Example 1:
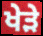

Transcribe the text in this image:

ਖੇੜੇ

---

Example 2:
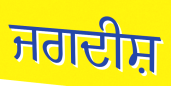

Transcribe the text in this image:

ਜਗਦੀਸ਼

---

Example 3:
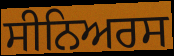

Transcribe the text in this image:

ਸੀਨਿਅਰਸ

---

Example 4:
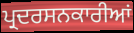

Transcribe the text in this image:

ਪ੍ਰਦਰਸਨਕਾਰੀਆਂ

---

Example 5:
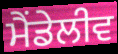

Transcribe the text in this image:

ਮੈਂਡੇਲੀਵ